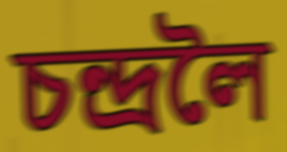
চন্দ্ৰলৈ